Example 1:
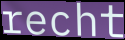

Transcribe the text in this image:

recht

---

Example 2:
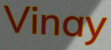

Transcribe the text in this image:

Vinay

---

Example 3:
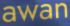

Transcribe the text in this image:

awan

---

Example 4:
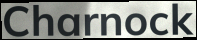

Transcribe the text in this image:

Charnock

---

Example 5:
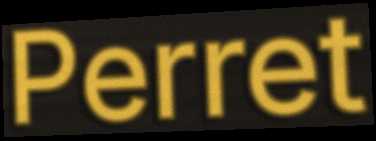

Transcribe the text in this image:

Perret